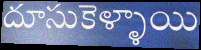
దూసుకెళ్ళాయి